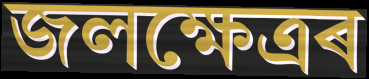
জলক্ষেত্ৰৰ